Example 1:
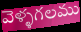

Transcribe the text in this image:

వెళ్ళగలము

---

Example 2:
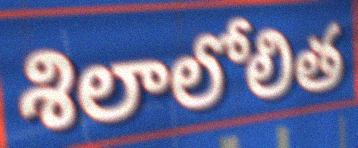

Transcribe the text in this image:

శిలాలోలిత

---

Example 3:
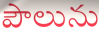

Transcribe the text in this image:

పౌలును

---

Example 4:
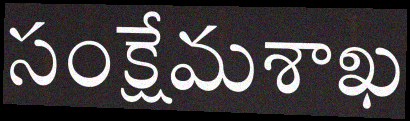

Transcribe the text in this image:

సంక్షేమశాఖ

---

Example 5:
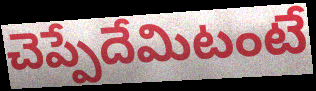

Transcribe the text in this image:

చెప్పేదేమిటంటే